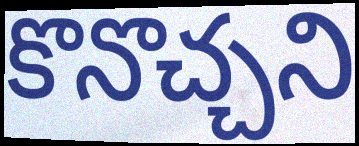
కొనొచ్చని